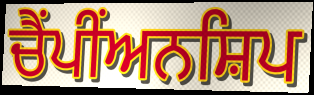
ਚੈਂਪੀਂਅਨਸ਼ਿਪ